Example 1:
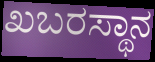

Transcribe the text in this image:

ಖಬರಸ್ಥಾನ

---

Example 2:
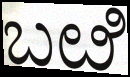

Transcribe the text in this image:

ಬೞಿ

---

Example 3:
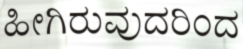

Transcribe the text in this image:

ಹೀಗಿರುವುದರಿಂದ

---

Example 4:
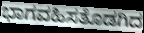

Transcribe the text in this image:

ಭಾಗವಹಿಸತೊಡಗಿದ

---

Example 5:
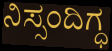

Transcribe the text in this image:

ನಿಸ್ಸಂದಿಗ್ಧ